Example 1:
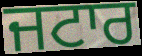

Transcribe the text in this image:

ਜਟਾਰ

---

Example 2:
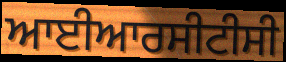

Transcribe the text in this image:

ਆਈਆਰਸੀਟੀਸੀ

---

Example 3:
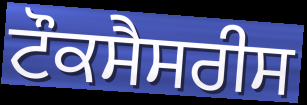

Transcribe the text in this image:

ਟੌਕਸੈਸਰੀਸ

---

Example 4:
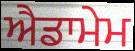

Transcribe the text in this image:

ਐਡਾਮੇਮ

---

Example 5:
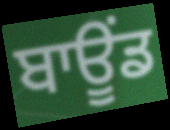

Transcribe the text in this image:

ਬਾਊਂਡ